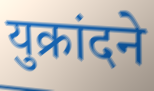
युक्रांदने